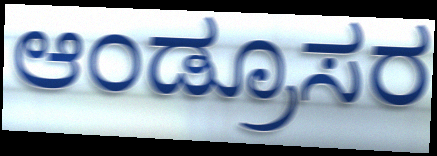
ಆಂಡ್ರೂಸರ